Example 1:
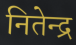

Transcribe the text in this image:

नितेन्द्र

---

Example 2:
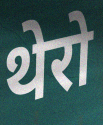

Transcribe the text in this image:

थेरो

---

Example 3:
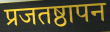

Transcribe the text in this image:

प्रजतष्ठापन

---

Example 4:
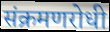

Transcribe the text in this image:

संक्रमणरोधी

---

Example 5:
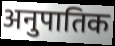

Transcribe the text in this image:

अनुपातिक